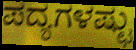
ಪದ್ಯಗಳಷ್ಟು